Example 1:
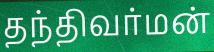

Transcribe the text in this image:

தந்திவர்மன்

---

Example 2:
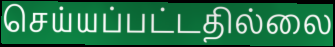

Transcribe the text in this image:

செய்யப்பட்டதில்லை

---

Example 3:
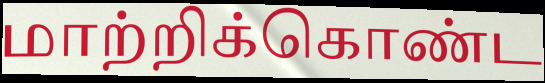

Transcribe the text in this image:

மாற்றிக்கொண்ட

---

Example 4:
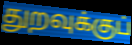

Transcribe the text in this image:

துறவுக்குப்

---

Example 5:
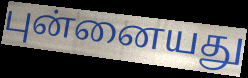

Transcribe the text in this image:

புன்னையது